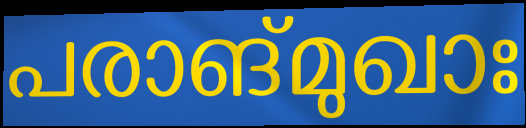
പരാങ്മുഖാഃ